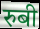
रुबी